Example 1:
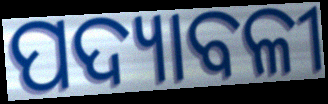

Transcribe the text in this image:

ପଦ୍ୟାବଳୀ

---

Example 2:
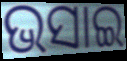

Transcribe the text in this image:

ଭସାଇ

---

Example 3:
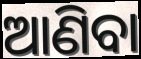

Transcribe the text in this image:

ଆଣିବା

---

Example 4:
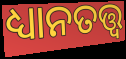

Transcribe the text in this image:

ଧ୍ୟାନତତ୍ତ୍ୱ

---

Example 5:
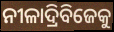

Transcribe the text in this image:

ନୀଳାଦ୍ରିବିଜେକୁ